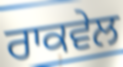
ਰਾਕਵੇਲ